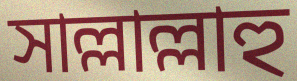
সাল্লাল্লাহু